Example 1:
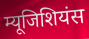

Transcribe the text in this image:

म्यूजिशियंस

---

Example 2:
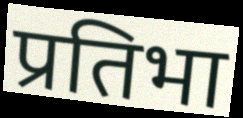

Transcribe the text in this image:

प्रतिभा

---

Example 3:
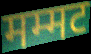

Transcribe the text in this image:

मम्मट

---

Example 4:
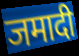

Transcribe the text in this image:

जमादी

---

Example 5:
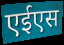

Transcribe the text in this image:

एईएस